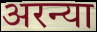
अरन्या